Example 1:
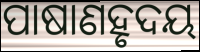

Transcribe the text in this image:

ପାଷାଣହୃଦୟ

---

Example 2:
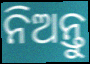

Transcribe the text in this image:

ନିଅନ୍ତୁ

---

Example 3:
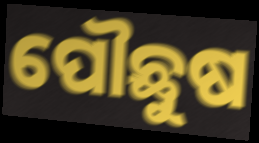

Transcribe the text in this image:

ପୌଛୁଷ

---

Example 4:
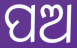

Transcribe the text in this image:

ପଅ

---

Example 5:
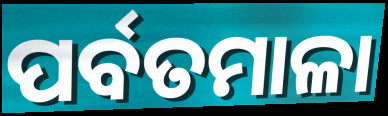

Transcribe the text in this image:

ପର୍ବତମାଳା